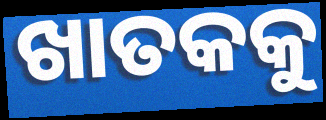
ଖାତକକୁ